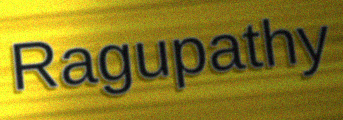
Ragupathy